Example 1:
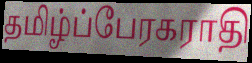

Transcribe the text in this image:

தமிழ்ப்பேரகராதி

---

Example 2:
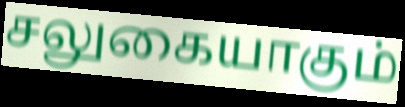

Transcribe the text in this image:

சலுகையாகும்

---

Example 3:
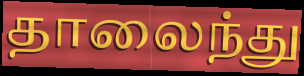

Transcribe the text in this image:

தாலைந்து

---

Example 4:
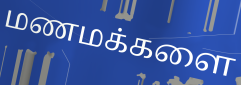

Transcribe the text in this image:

மணமக்களை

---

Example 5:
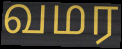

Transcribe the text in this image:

வமர